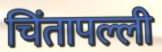
चिंतापल्ली